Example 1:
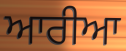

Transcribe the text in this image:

ਆਰੀਆ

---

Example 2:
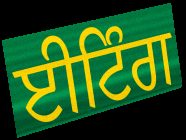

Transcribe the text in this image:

ਈਟਿੰਗ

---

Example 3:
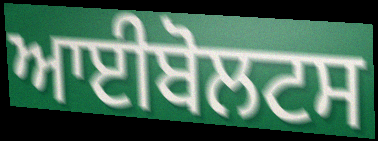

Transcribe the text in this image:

ਆਈਬੋਲਟਸ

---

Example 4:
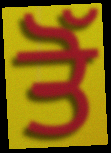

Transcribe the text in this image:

ਤੋੱ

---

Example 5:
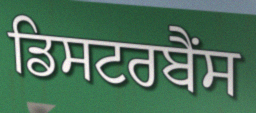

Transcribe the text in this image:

ਡਿਸਟਰਬੈਂਸ